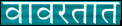
वावरतात